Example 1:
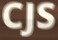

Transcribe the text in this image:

CJS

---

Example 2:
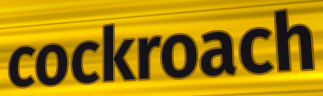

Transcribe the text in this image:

cockroach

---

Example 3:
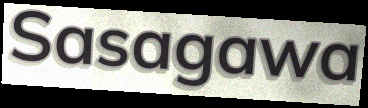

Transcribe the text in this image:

Sasagawa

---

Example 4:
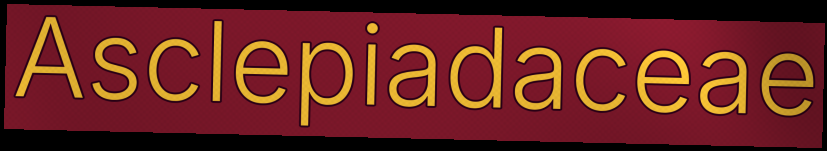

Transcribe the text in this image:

Asclepiadaceae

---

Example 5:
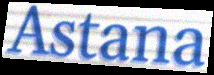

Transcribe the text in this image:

Astana